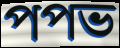
পপভ